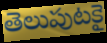
తెలుపుటకై